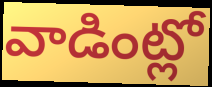
వాడింట్లో